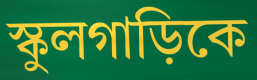
স্কুলগাড়িকে